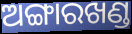
ଅଙ୍ଗାରଖଣ୍ଡ